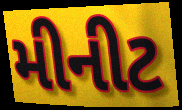
મીનીટ